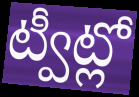
ట్వీట్లో